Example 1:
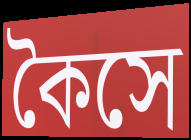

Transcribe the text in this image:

কৈসে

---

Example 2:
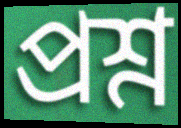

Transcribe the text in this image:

প্রশ্ন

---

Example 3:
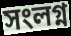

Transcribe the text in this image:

সংলগ্ন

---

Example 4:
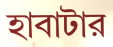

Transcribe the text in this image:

হাবাটার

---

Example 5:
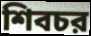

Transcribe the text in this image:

শিবচর